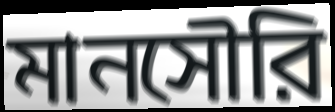
মানসৌরি